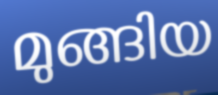
മുങ്ങിയ